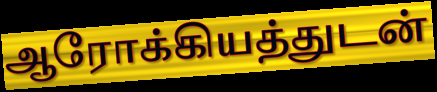
ஆரோக்கியத்துடன்